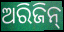
ଅରିଜିନ୍